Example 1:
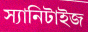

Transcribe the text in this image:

স্যানিটাইজ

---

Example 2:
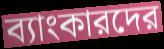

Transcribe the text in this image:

ব্যাংকারদের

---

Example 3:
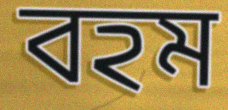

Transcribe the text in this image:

বহম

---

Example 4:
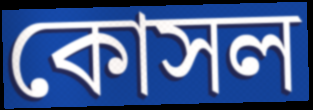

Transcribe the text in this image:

কোসল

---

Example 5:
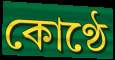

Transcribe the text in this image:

কোণ্ঠে